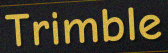
Trimble